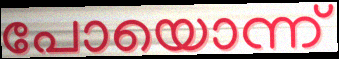
പോയൊന്ന്